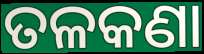
ତଳକଣା